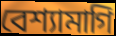
বেশ্যামাগি